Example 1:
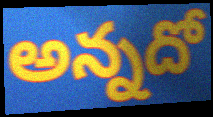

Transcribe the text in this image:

అన్నదో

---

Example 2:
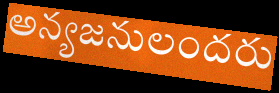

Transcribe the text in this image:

అన్యజనులందరు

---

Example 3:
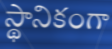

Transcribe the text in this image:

స్థానికంగా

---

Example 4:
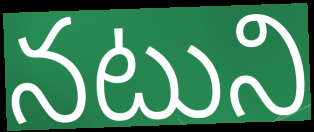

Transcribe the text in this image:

నటుని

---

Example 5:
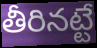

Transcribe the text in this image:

తీరినట్టే